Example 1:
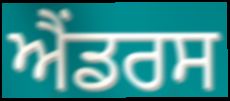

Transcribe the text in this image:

ਐਂਡਰਸ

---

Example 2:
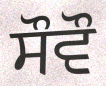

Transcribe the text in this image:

ਸੌਵੌ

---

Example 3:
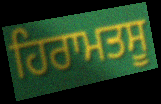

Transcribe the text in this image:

ਹਿਰਾਮਤਸੂ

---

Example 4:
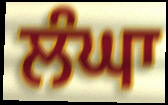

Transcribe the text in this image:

ਲੰਘਾ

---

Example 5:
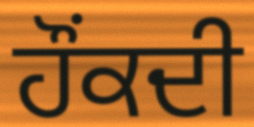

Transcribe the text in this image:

ਹੌਂਕਦੀ